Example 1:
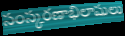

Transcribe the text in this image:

సంస్కరణాభిలాషులు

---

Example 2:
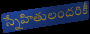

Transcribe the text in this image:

స్నేహితులందరికీ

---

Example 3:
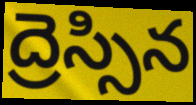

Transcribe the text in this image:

ద్రెస్సిన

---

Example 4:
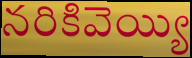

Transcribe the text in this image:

నరికివెయ్యి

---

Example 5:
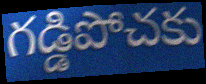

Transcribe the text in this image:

గడ్డిపోచకు